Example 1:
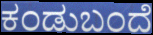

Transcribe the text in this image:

ಕಂಡುಬಂದೆ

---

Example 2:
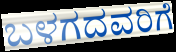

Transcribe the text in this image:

ಬಳಗದವರಿಗೆ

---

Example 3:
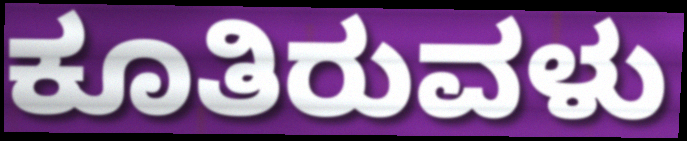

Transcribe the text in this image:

ಕೂತಿರುವಳು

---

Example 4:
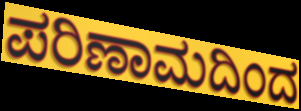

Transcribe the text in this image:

ಪರಿಣಾಮದಿಂದ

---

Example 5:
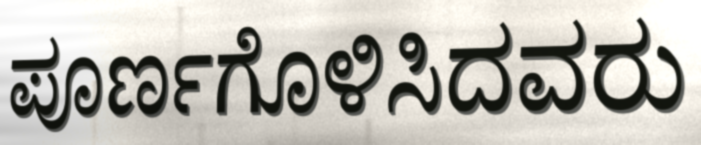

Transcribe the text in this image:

ಪೂರ್ಣಗೊಳಿಸಿದವರು